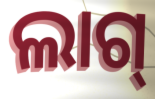
ଲାଗ୍